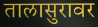
तालासुरावर